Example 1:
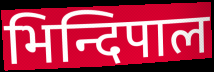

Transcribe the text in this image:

भिन्दिपाल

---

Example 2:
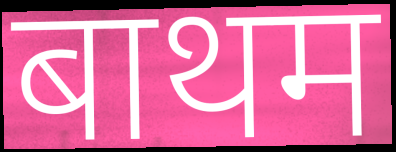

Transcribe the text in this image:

बाथम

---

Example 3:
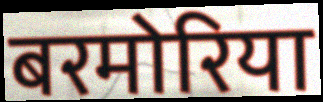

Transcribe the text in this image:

बरमोरिया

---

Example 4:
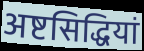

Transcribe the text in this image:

अष्टसिद्धियां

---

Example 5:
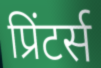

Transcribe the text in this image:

प्रिंटर्स